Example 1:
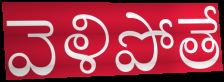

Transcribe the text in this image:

వెళిపోతే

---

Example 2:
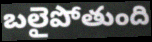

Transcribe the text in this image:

బలైపోతుంది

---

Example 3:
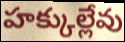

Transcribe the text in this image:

హక్కుల్లేవు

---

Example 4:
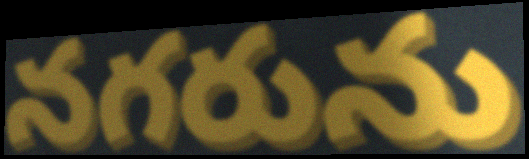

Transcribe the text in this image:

నగరును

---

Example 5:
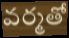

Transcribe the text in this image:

వర్మతో